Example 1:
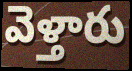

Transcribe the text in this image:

వెళ్తారు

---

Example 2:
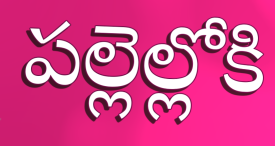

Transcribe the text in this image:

పల్లెల్లోకి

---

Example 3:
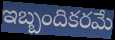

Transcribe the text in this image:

ఇబ్బందికరమే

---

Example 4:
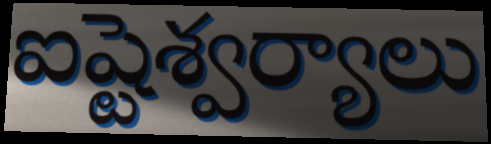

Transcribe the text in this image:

ఐష్టెశ్వర్యాలు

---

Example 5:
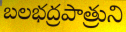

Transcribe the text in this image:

బలభద్రపాత్రుని